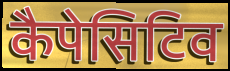
कैपेसिटिव